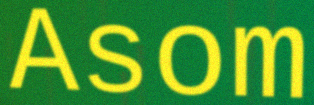
Asom